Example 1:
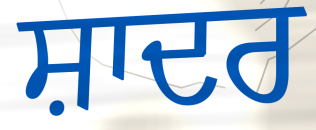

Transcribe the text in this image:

ਸ਼ਾਦਰ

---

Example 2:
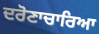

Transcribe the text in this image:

ਦਰੋਣਾਚਾਰਿਆ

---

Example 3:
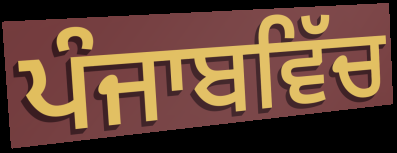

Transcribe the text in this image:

ਪੰਜਾਬਵਿੱਚ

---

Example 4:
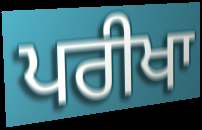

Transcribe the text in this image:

ਪਰੀਖਾ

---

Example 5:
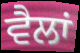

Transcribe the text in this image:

ਵੈਲਾਂ